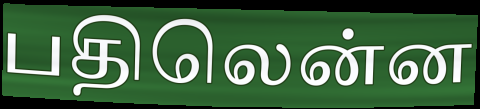
பதிலென்ன